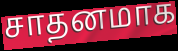
சாதனமாக